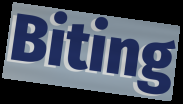
Biting